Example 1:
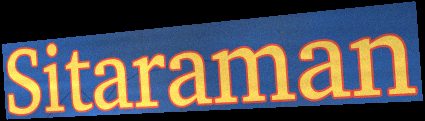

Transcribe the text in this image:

Sitaraman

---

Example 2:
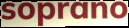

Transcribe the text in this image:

soprano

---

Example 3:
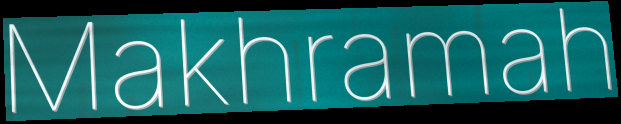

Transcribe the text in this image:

Makhramah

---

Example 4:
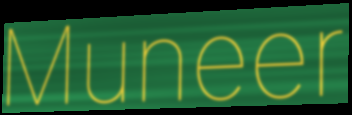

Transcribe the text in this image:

Muneer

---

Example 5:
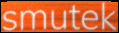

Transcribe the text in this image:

smutek